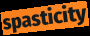
spasticity